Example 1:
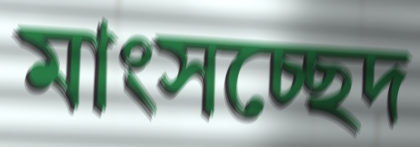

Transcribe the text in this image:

মাংসচ্ছেদ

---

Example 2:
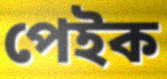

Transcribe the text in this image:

পেইক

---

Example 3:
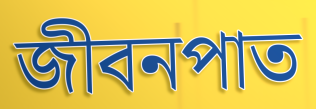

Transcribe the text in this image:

জীবনপাত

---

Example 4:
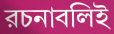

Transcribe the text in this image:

রচনাবলিই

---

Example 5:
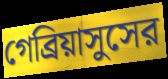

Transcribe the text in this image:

গেব্রিয়াসুসের